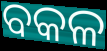
ବକଳ